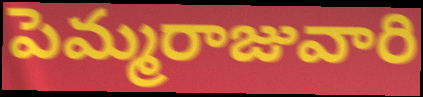
పెమ్మరాజువారి